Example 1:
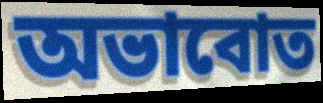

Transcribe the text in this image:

অভাবোত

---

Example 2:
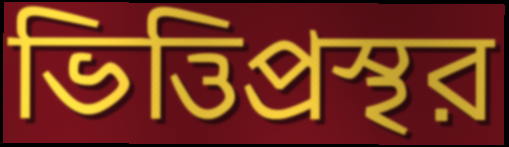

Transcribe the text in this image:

ভিত্তিপ্রস্থর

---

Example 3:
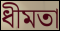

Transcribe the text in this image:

ধীমতা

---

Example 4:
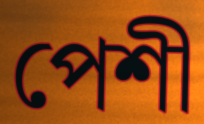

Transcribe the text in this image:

পেশী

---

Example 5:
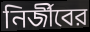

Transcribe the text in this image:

নির্জীবের